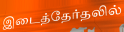
இடைத்தேர்தலில்